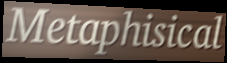
Metaphisical